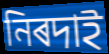
নিৰদাই